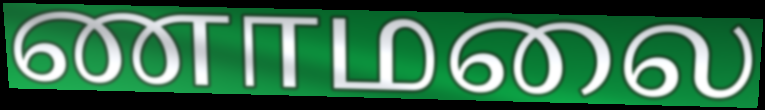
ணாமலை